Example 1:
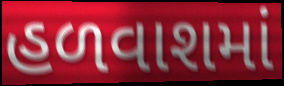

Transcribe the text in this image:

હળવાશમાં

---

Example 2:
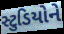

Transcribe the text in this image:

સ્ટુડિયોને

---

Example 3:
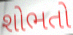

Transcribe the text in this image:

શોભતો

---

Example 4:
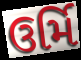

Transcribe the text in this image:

ઉર્મિ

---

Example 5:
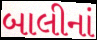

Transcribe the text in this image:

બાલીનાં